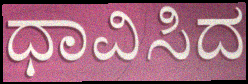
ಧಾವಿಸಿದ